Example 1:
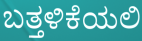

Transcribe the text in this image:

ಬತ್ತಳಿಕೆಯಲಿ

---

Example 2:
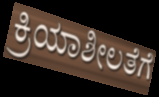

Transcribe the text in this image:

ಕ್ರಿಯಾಶೀಲತೆಗೆ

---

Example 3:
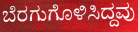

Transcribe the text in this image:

ಬೆರಗುಗೊಳಿಸಿದ್ದವು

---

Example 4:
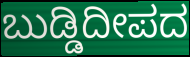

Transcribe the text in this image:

ಬುಡ್ಡಿದೀಪದ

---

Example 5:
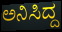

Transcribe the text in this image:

ಅನಿಸಿದ್ದ